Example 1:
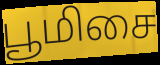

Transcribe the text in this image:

பூமிசை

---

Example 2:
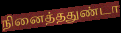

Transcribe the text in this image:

நினைத்ததுண்டா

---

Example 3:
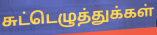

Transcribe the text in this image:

சுட்டெழுத்துக்கள்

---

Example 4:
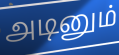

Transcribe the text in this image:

அடினும்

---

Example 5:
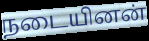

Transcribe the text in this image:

நடையினன்